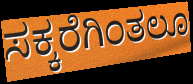
ಸಕ್ಕರೆಗಿಂತಲೂ